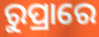
ରୁପ୍ରାରେ